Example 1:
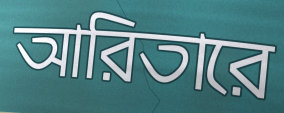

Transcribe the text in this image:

আরিতারে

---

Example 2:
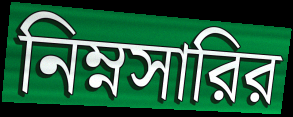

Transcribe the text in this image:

নিম্নসারির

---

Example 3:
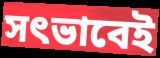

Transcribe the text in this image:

সৎভাবেই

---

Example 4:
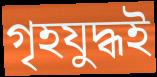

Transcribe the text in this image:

গৃহযুদ্ধই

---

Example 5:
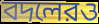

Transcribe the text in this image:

বদলেরও